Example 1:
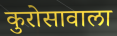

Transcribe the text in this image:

कुरोसावाला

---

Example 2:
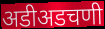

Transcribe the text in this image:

अडीअडचणी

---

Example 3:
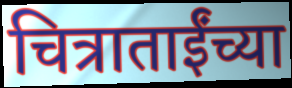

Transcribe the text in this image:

चित्राताईंच्या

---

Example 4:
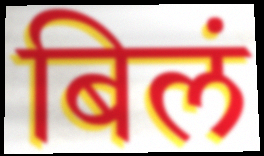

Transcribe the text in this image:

बिलं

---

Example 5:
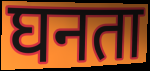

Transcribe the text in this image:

घनता